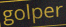
golper